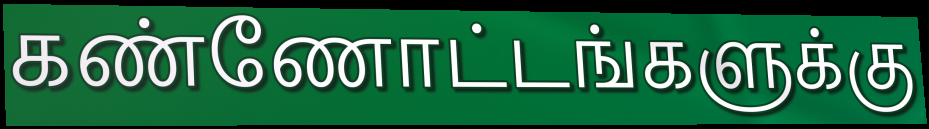
கண்ணோட்டங்களுக்கு